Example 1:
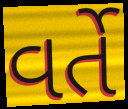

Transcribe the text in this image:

વર્તે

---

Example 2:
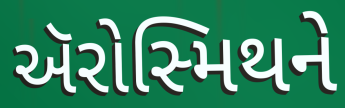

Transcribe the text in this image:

ઍરોસ્મિથને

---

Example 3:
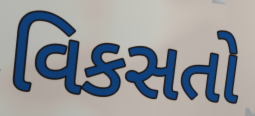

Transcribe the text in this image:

વિકસતો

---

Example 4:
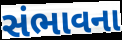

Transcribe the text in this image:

સંભાવના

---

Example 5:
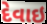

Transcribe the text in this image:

દેવાઇ